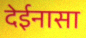
देईनासा